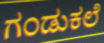
ಗಂಡುಕಲೆ